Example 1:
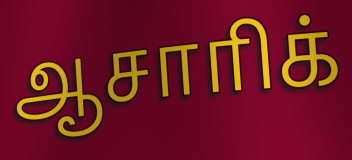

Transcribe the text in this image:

ஆசாரிக்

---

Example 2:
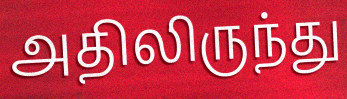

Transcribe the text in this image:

அதிலிருந்து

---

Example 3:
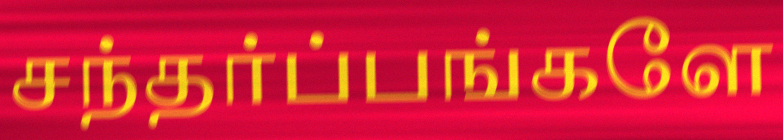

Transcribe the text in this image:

சந்தர்ப்பங்களே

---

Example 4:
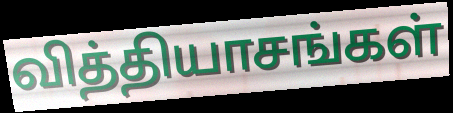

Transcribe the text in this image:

வித்தியாசங்கள்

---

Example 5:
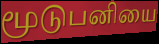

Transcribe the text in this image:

மூடுபனியை